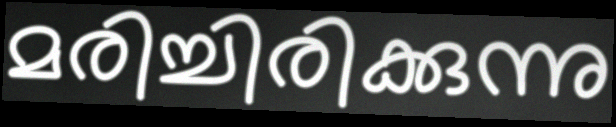
മരിച്ചിരിക്കുന്നു